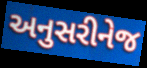
અનુસરીનેજ